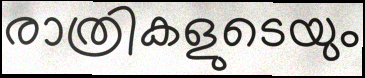
രാത്രികളുടെയും